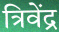
त्रिवेंद्र